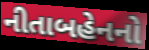
નીતાબહેનનો